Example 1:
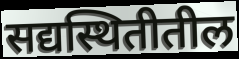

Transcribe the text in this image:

सद्यस्थितीतील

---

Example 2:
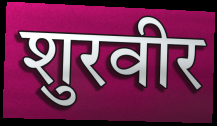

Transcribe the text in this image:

शुरवीर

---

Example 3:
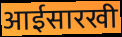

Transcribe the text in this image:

आईसारखी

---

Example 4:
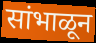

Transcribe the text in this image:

सांभाळून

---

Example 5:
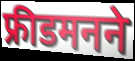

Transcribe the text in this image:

फ्रीडमनने